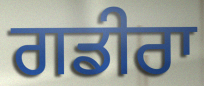
ਗਡੀਰਾ